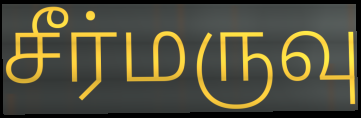
சீர்மருவு